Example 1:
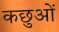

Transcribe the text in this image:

कछुओं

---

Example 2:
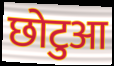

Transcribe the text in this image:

छोटुआ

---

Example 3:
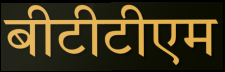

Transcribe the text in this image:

बीटीटीएम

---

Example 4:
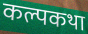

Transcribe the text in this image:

कल्पकथा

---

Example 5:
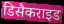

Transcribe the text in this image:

डिसैकराइड